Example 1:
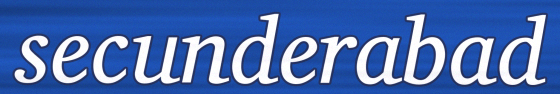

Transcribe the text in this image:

secunderabad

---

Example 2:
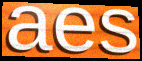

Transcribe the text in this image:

aes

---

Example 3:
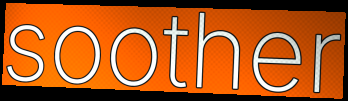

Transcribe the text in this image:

soother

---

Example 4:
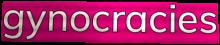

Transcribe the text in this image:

gynocracies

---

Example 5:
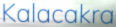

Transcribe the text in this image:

Kalacakra